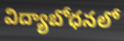
విద్యాబోధనలో